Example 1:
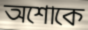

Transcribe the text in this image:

অশোকে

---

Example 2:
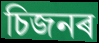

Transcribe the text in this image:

চিজনৰ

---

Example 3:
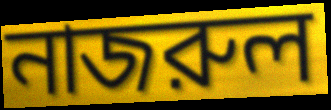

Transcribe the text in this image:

নাজৰুল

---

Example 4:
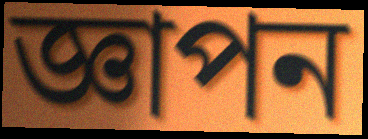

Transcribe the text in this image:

জ্ঞাপন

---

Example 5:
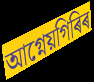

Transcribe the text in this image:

আগ্নেয়গিৰিৰ